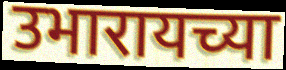
उभारायच्या